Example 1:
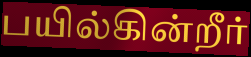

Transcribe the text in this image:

பயில்கின்றீர்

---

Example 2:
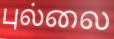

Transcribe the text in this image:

புல்லை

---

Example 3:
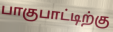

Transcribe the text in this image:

பாகுபாட்டிற்கு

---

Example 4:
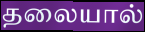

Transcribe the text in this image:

தலையால்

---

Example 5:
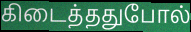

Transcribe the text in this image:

கிடைத்ததுபோல்